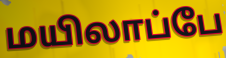
மயிலாப்பே